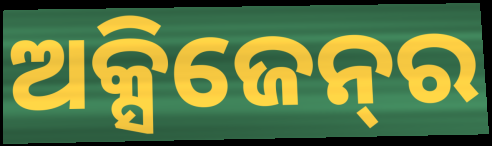
ଅକ୍ସିଜେନ୍‌ର